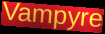
Vampyre